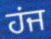
ਹਂਜ